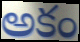
అకం